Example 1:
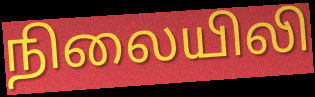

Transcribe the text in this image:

நிலையிலி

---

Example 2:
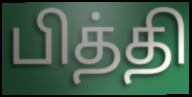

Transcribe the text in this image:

பித்தி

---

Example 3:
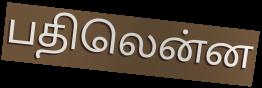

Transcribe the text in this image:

பதிலென்ன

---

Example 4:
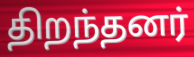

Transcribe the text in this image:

திறந்தனர்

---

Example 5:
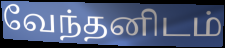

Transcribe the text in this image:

வேந்தனிடம்